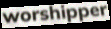
worshipper